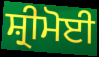
ਸ਼੍ਰੀਮੋਈ